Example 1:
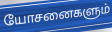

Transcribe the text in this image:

யோசனைகளும்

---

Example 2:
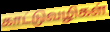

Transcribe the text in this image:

காட்டுவழிகள்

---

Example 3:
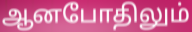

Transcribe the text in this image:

ஆனபோதிலும்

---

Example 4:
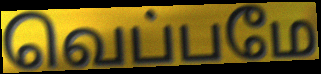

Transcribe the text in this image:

வெப்பமே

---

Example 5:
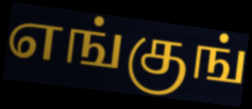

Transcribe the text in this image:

எங்குங்